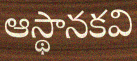
ఆస్థానకవి